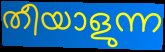
തീയാളുന്ന